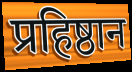
प्रहिष्ठान